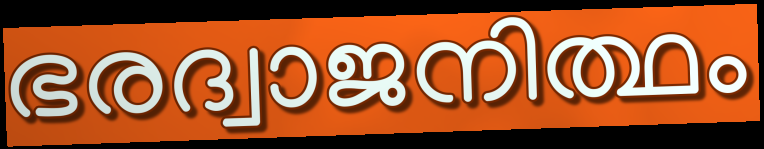
ഭരദ്വാജനിത്ഥം